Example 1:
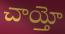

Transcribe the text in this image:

చాయ్తో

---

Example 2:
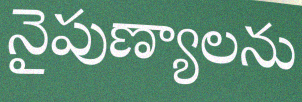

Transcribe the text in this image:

నైపుణ్యాలను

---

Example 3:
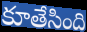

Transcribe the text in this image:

కూతేసింది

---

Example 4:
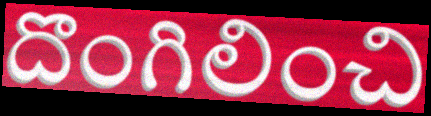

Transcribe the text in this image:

దొంగిలించి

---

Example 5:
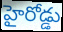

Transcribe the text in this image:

హైరోడ్డు